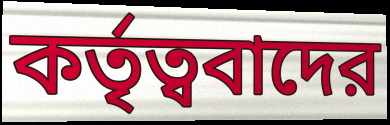
কর্তৃত্ববাদের